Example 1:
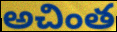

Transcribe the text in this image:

అచింత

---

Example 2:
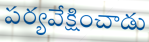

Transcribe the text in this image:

పర్యవేక్షించాడు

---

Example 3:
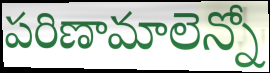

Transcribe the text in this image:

పరిణామాలెన్నో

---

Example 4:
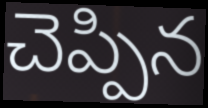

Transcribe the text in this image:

చెప్పిన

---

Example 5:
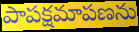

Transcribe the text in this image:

పాపక్షమాపణను